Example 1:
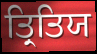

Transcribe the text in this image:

ਤ੍ਰਿਤਿਯ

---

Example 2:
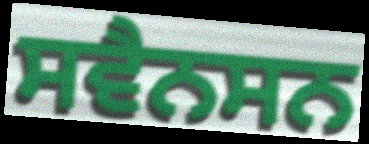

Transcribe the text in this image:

ਸਵੈਨਸਨ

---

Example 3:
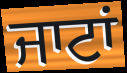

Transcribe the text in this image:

ਜਾਟਾਂ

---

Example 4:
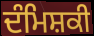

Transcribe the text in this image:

ਦੰਮਿਸ਼ਕੀ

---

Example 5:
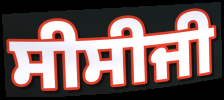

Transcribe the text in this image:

ਸੀਸੀਜੀ